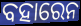
ବହାରେନ